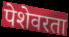
पेशेवरता